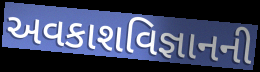
અવકાશવિજ્ઞાનની